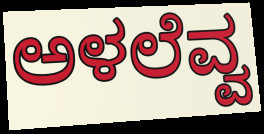
ಅಳಲೆವ್ವ